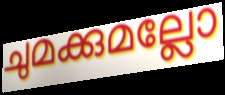
ചുമക്കുമല്ലോ